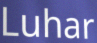
Luhar